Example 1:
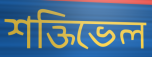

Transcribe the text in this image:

শক্তিভেল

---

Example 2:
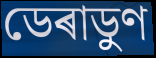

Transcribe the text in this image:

ডেৰাডুণ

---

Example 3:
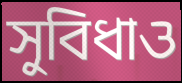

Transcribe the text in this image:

সুবিধাও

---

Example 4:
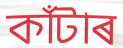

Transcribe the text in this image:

কাঁটাৰ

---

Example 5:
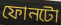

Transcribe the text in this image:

ফোনটো